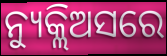
ନ୍ୟୁକ୍ଲିଅସରେ